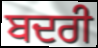
ਬਦਰੀ